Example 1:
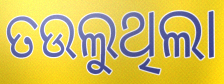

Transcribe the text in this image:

ତଉଲୁଥିଲା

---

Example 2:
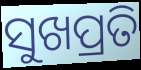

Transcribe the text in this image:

ସୁଖପ୍ରତି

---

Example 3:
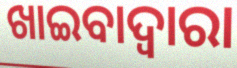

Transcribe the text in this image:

ଖାଇବାଦ୍ୱାରା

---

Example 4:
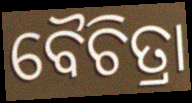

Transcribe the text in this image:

ବୈଚିତ୍ରା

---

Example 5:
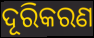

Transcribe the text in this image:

ଦୂରିକରଣ